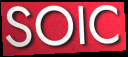
SOIC